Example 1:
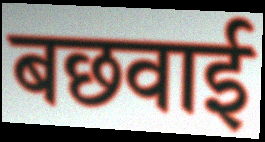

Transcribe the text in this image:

बछवाई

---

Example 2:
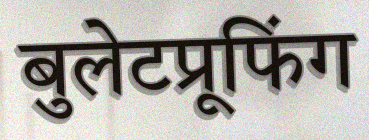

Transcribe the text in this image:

बुलेटप्रूफिंग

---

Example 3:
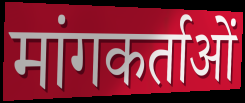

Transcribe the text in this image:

मांगकर्ताओं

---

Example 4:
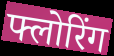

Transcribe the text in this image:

फ्लोरिंग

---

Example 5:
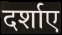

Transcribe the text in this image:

दर्शाए